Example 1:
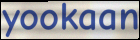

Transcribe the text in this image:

yookaan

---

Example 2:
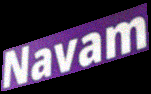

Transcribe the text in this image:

Navam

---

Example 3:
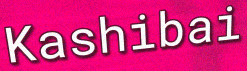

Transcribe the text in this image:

Kashibai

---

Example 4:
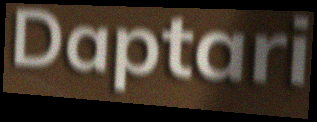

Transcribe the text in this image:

Daptari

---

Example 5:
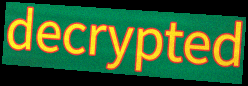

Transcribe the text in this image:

decrypted